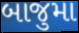
બાજુમા